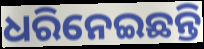
ଧରିନେଇଛନ୍ତି